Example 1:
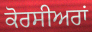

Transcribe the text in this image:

ਕੋਰਸੀਅਰਾਂ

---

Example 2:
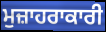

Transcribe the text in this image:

ਮੁਜ਼ਾਹਰਾਕਾਰੀ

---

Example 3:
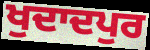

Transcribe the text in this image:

ਖੁਦਾਦਪੁਰ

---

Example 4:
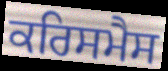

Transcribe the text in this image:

ਕਰਿਸਮੈਸ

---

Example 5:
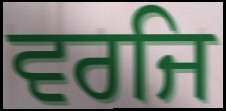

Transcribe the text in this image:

ਵਰਜਿ